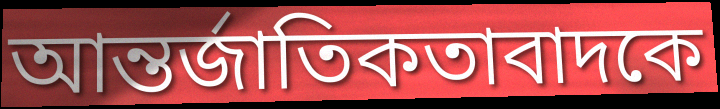
আন্তর্জাতিকতাবাদকে